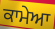
ਕਾਮੇਆ